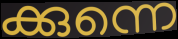
ക്കുന്നെ